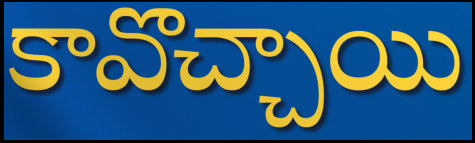
కావొచ్చాయి